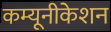
कम्यूनीकेशन